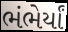
ભંભેર્યાં